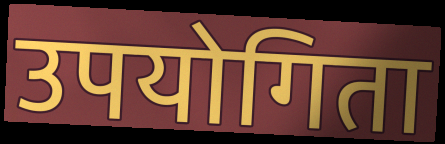
उपयोगिता